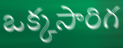
ఒక్కసారిగ